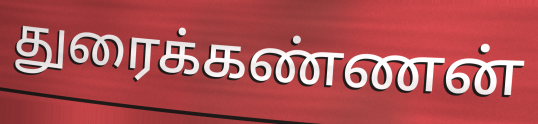
துரைக்கண்ணன்